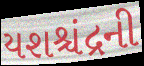
યશશ્ચંદ્રની